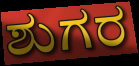
ಶುಗರ